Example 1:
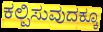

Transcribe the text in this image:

ಕಲ್ಪಿಸುವುದಕ್ಕೂ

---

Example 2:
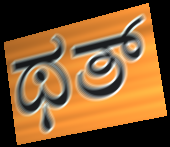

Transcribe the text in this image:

ಥತ್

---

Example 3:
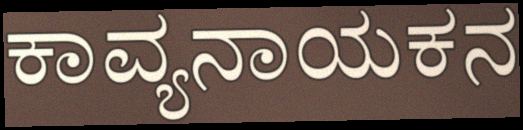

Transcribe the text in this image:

ಕಾವ್ಯನಾಯಕನ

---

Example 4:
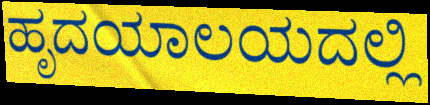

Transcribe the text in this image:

ಹೃದಯಾಲಯದಲ್ಲಿ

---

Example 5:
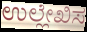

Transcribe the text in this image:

ಉಲ್ಲೇಖಿಸ